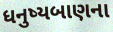
ધનુષ્યબાણના